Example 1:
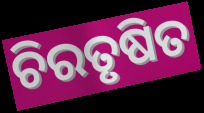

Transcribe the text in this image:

ଚିରତୃଷିତ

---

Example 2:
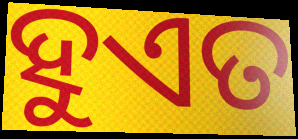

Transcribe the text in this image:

ହୁଏତ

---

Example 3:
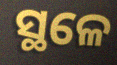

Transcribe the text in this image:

ସ୍ଥଳେ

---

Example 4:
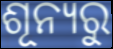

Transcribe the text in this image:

ଶୂନ୍ୟରୁ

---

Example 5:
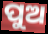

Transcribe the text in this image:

ପୁଅ